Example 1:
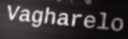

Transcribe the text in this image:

Vagharelo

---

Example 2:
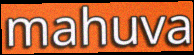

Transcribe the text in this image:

mahuva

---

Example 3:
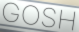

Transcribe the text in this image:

GOSH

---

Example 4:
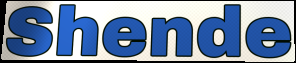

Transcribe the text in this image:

Shende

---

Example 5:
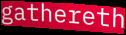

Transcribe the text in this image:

gathereth